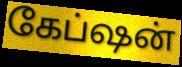
கேப்ஷன்